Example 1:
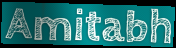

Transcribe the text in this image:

Amitabh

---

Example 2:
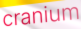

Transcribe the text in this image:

cranium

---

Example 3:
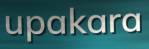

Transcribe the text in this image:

upakara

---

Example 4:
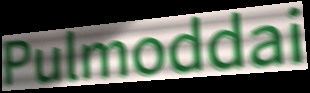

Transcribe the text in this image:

Pulmoddai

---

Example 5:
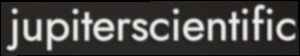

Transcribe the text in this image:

jupiterscientific